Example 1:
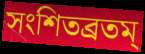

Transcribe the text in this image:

সংশিতব্রতম্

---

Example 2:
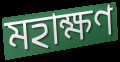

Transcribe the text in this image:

মহাক্ষণ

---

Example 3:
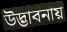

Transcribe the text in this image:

উদ্ভাবনায়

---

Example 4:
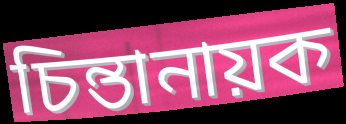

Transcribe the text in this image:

চিন্তানায়ক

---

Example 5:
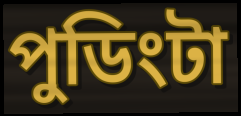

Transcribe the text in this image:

পুডিংটা